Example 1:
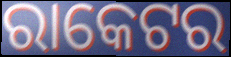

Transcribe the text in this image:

ରାକେଟର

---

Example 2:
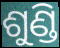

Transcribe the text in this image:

ଶୁଣ୍ଡି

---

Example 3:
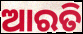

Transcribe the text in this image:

ଆରତି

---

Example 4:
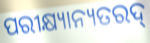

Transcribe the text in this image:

ପରୀକ୍ଷ୍ୟାନ୍ୟତରଦ୍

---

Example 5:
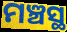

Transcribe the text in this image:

ମଞ୍ଚସ୍ଥ